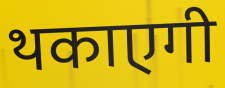
थकाएगी